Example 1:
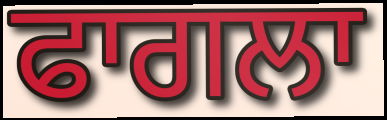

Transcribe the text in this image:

ਫਾਗਲਾ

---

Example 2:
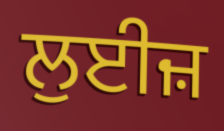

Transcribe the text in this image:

ਲੁਈਜ਼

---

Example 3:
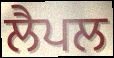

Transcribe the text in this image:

ਲੈਪਲ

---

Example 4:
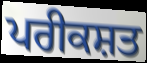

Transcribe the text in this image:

ਪਰੀਕਸ਼ਤ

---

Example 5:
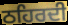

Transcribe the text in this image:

ਠਹਿਰਦੀ